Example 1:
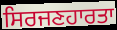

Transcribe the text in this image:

ਸਿਰਜਣਹਾਰਤਾ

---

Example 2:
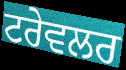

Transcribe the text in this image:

ਟਰੇਵਲਰ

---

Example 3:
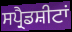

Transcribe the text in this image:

ਸਪ੍ਰੈਡਸ਼ੀਟਾਂ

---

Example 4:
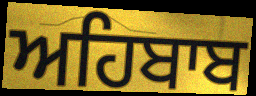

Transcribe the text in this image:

ਅਹਿਬਾਬ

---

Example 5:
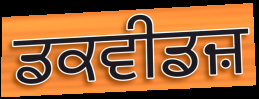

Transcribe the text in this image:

ਡਕਵੀਡਜ਼